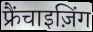
फ्रैंचाइज़िंग